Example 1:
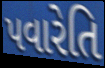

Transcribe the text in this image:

પવારેતિ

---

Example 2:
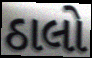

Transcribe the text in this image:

ઠાલો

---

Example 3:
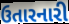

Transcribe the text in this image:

ઉતારનારી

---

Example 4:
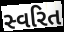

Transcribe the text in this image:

સ્વરિત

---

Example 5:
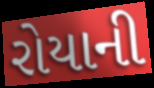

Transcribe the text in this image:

રોયાની